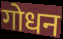
गोधन